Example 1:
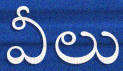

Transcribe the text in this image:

వీలు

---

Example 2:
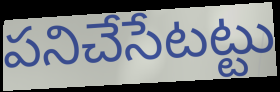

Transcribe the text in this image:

పనిచేసేటట్టు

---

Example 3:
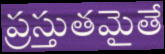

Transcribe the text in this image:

ప్రస్తుతమైతే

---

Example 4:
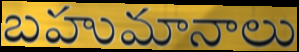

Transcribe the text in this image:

బహుమానాలు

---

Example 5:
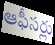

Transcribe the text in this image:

ఆఫీసర్లు